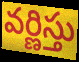
వర్ణిస్తు